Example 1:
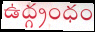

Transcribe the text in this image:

ఉద్గ్రంధం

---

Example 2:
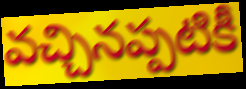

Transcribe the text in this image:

వచ్చినప్పటికీ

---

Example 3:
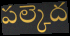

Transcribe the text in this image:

పల్కెద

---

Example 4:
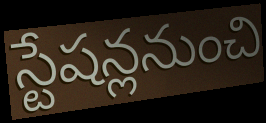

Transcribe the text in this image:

స్టేషన్లనుంచి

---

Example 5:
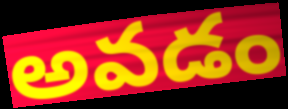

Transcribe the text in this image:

అవడం